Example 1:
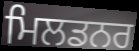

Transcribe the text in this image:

ਮਿਲਡਨਰ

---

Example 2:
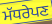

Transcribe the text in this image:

ਮੱਧਰੇਪਣ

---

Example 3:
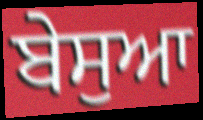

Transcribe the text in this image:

ਬੇਸੁਆ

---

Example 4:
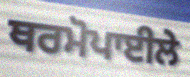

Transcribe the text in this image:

ਥਰਮੋਪਾਈਲੇ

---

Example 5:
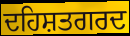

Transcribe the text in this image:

ਦਹਿਸ਼ਤਗਰਦ